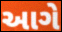
આગે